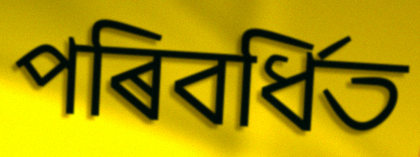
পৰিবৰ্ধিত